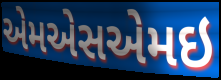
એમએસએમઇ